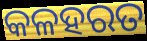
କଳହରତ